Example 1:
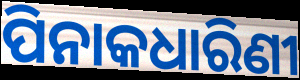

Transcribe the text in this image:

ପିନାକଧାରିଣୀ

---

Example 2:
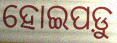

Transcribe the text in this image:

ହୋଇପଡ଼ୁ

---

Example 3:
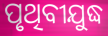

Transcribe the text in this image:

ପୃଥିବୀଯୁଦ୍ଧ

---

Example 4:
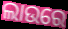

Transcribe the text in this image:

ଲାଉରେ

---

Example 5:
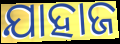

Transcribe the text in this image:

ଯାହାଜ